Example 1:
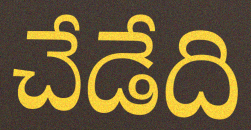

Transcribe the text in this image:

చేడేది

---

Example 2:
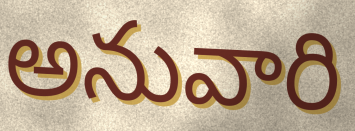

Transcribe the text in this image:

అనువారి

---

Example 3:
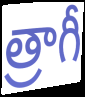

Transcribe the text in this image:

త్రాగీ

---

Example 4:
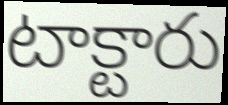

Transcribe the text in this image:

టాక్టారు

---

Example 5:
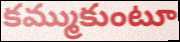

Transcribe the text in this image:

కమ్ముకుంటూ